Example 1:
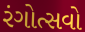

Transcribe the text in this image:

રંગોત્સવો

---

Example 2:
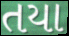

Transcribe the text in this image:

તયા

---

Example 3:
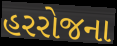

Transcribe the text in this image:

હરરોજના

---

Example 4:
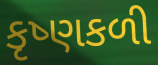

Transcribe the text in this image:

કૃષ્ણકળી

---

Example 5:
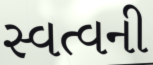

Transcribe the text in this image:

સ્વત્વની